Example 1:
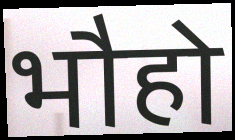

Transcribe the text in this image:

भौहो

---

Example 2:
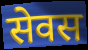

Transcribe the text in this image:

सेवस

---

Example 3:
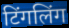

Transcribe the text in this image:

टिंगलिंग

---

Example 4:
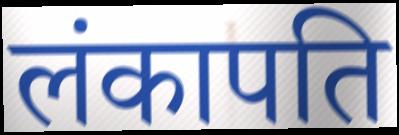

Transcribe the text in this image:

लंकापति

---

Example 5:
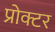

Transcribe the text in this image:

प्रोक्टर